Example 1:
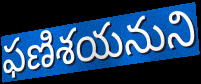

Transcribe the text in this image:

ఫణిశయనుని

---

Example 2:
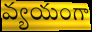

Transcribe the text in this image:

వ్యయంగా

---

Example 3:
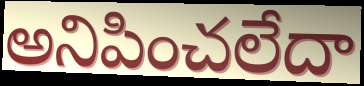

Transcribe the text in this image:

అనిపించలేదా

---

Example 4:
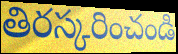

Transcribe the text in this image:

తిరస్కరించండి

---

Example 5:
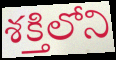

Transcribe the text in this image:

శక్తిలోని